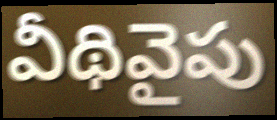
వీథివైపు